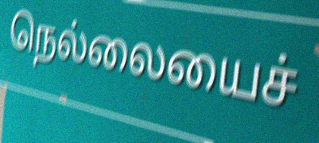
நெல்லையைச்